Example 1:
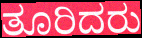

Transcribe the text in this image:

ತೂರಿದರು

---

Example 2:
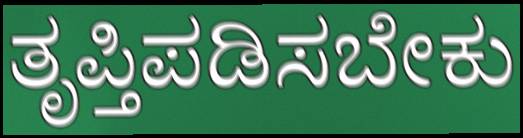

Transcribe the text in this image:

ತೃಪ್ತಿಪಡಿಸಬೇಕು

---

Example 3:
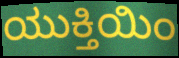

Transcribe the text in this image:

ಯುಕ್ತಿಯಿಂ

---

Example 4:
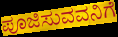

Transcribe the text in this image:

ಪೂಜಿಸುವವನಿಗೆ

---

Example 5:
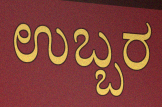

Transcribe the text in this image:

ಉಬ್ಬರ